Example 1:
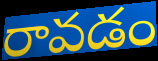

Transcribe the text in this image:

రావడం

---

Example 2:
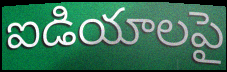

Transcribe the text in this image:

ఐడియాలపై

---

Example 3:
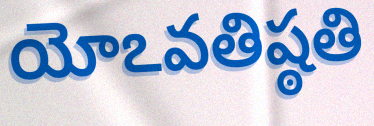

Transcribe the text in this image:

యోఽవతిష్ఠతి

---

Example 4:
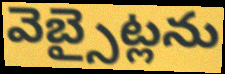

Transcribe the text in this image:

వెబ్సైట్లను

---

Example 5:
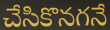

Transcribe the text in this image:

చేసికొనగనే